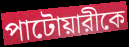
পাটোয়ারীকে